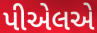
પીએલએ